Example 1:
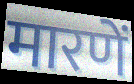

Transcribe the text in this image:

मारणें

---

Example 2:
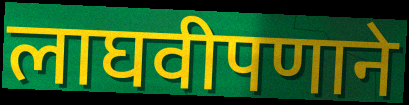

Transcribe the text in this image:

लाघवीपणाने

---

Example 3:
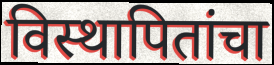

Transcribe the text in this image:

विस्थापितांचा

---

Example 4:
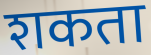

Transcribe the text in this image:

शकता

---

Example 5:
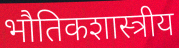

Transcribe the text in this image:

भौतिकशास्त्रीय